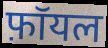
फ़ॉयल